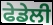
ਫੇਡੇਲੀ